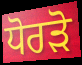
ਧੋਰੜੋ